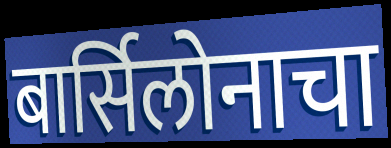
बार्सिलोनाचा